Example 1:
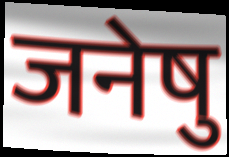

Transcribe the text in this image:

जनेषु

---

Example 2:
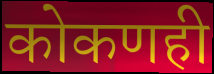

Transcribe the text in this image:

कोकणही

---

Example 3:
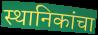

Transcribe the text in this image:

स्थानिकांचा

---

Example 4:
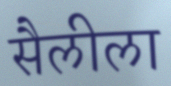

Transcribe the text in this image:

सैलीला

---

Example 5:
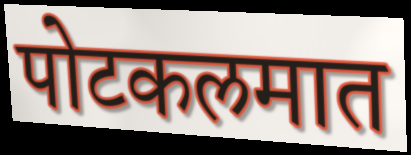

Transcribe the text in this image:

पोटकलमात